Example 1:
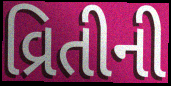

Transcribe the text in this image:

વ્રિતીની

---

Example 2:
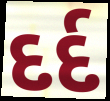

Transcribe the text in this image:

દર્દ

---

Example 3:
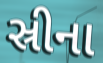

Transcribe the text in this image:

સ્રીના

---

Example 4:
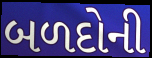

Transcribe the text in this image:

બળદોની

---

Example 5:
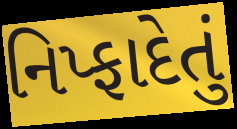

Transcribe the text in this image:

નિપ્ફાદેતું